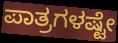
ಪಾತ್ರಗಳಷ್ಟೇ